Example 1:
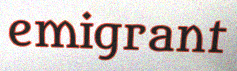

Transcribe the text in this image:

emigrant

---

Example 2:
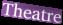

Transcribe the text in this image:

Theatre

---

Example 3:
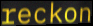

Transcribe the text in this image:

reckon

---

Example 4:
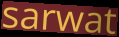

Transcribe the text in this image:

sarwat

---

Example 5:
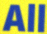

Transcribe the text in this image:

All